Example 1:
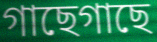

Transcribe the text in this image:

গাছেগাছে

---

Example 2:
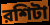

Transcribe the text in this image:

রশিটা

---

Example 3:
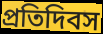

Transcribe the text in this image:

প্রতিদিবস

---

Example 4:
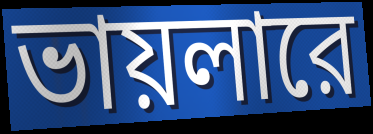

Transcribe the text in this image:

ভায়লারে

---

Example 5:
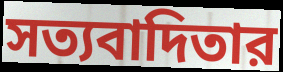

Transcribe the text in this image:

সত্যবাদিতার